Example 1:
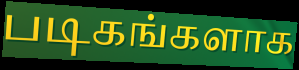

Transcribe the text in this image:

படிகங்களாக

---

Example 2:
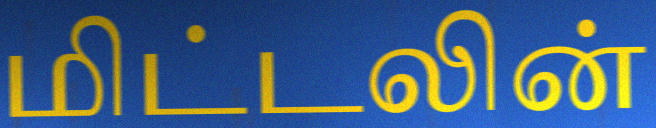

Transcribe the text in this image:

மிட்டலின்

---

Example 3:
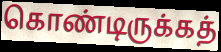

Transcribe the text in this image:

கொண்டிருக்கத்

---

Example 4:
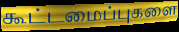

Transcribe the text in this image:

கூட்டமைப்புகளை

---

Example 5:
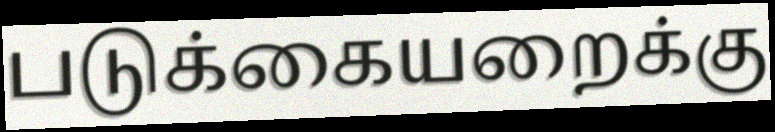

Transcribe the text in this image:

படுக்கையறைக்கு